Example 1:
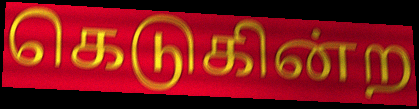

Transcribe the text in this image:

கெடுகின்ற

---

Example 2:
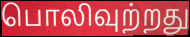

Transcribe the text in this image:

பொலிவுற்றது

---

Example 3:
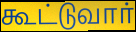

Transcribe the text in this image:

கூட்டுவார்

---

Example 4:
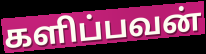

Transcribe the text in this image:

களிப்பவன்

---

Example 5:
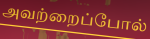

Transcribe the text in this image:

அவற்றைப்போல்